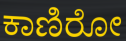
ಕಾಣಿರೋ